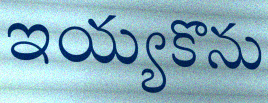
ఇయ్యకొను